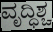
ವೃದ್ಧಿಶ್ಚ